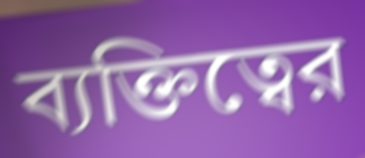
ব্যক্তিত্বের